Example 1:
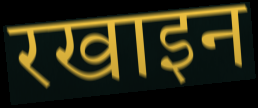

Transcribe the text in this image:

रखाइन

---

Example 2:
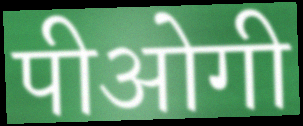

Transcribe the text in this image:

पीओगी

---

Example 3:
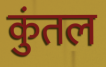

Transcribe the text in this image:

कुंतल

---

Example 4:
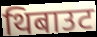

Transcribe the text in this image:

थिबाउट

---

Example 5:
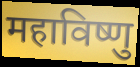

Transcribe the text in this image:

महाविष्णु